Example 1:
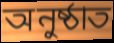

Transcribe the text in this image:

অনুষ্ঠাত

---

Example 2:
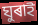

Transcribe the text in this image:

ঘুৰাই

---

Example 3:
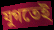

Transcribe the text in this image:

যুগতেই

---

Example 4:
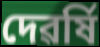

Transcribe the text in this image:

দেৱৰ্ষি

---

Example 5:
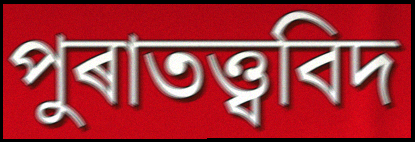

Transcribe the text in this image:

পুৰাতত্ত্ববিদ